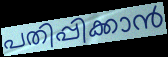
പതിപ്പിക്കാൻ